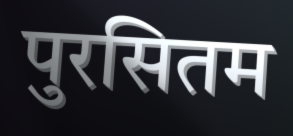
पुरसितम